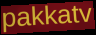
pakkatv